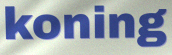
koning